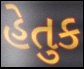
હેતુક